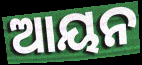
ଆୟନ